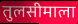
तुलसीमाला